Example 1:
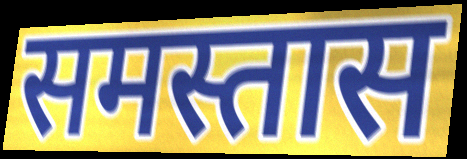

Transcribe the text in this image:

समस्तास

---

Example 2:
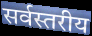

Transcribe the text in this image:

सर्वस्तरीय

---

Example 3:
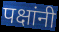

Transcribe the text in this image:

पक्षांनी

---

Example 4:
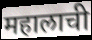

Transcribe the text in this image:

महालाची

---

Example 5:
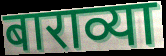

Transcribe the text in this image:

बाराव्या